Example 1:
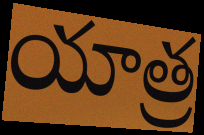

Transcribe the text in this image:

యాత్ర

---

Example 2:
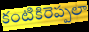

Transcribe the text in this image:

కంటికిరెప్పలా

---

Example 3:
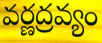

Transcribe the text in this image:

వర్ణద్రవ్యం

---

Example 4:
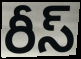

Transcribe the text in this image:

రీస్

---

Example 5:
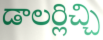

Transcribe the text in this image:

డాలర్లిచ్చి